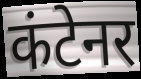
कंटेनर